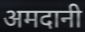
अमदानी